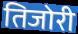
तिजोरी